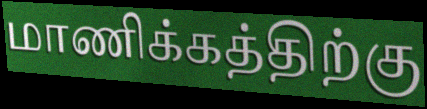
மாணிக்கத்திற்கு